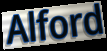
Alford